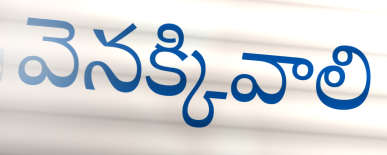
వెనక్కివాలి